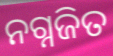
ନଗ୍ନଜିତ